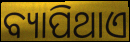
ବ୍ୟାପିଥାଏ